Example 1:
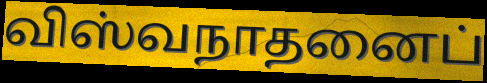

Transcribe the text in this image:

விஸ்வநாதனைப்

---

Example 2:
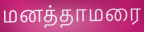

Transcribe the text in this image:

மனத்தாமரை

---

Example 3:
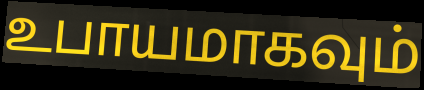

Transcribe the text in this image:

உபாயமாகவும்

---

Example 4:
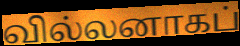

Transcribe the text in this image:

வில்லனாகப்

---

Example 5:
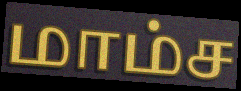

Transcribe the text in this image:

மாம்ச